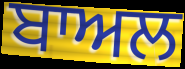
ਬਾਅਲ